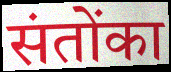
संतोंका